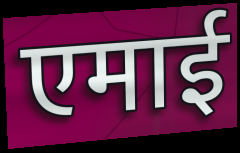
एमाई